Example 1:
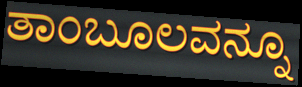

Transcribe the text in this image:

ತಾಂಬೂಲವನ್ನೂ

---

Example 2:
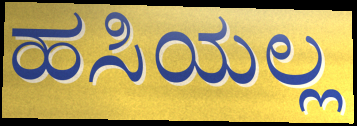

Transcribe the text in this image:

ಹಸಿಯಲ್ಲ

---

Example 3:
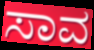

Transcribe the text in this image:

ಸಾವ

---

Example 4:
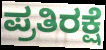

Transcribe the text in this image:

ಪ್ರತಿರಕ್ಷೆ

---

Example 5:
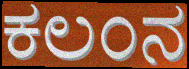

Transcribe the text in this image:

ಕಲಂನ